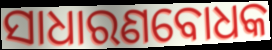
ସାଧାରଣବୋଧକ